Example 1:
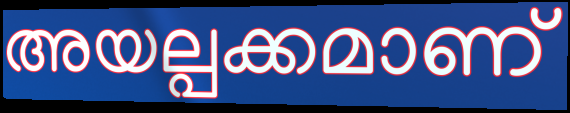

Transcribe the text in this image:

അയല്പക്കമാണ്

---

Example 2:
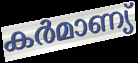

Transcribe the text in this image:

കർമാണ്യ്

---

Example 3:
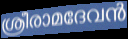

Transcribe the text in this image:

ശ്രീരാമദേവൻ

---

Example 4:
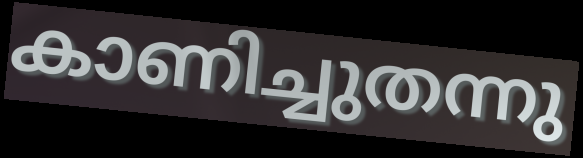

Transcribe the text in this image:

കാണിച്ചുതന്നു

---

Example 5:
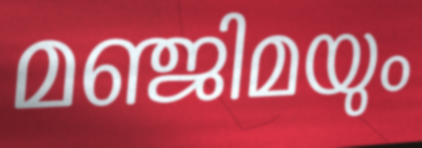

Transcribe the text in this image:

മഞ്ജിമയും